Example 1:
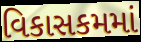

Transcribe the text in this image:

વિકાસકમમાં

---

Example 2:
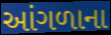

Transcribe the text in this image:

આંગળાના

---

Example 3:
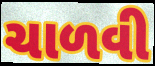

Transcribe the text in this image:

ચાળવી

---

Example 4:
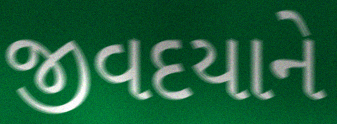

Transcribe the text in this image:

જીવદયાને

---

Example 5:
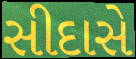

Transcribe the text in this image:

સીદાસે